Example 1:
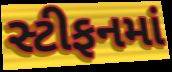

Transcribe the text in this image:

સ્ટીફનમાં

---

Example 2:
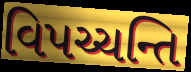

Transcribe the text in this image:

વિપચ્ચન્તિ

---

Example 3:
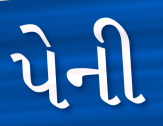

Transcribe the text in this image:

પેની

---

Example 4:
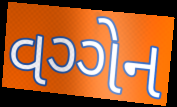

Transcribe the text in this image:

વગ્ગેન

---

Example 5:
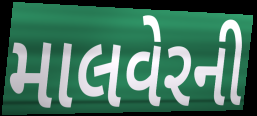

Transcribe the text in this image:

માલવેરની